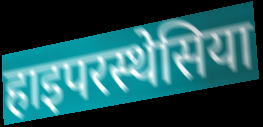
हाइपरस्थेसिया